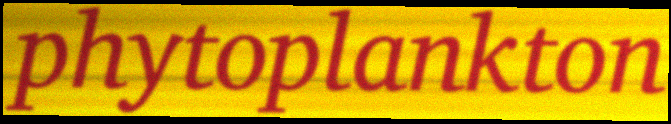
phytoplankton